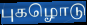
புகழொடு